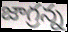
జాగ్రన్న